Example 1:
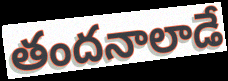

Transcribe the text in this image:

తందనాలాడే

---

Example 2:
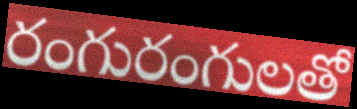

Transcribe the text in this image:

రంగురంగులతో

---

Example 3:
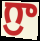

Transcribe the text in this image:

గ్రా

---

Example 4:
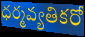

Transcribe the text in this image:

ధర్మవ్యతికరో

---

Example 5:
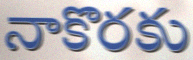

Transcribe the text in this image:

నాకొరకు